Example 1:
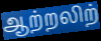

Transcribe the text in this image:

ஆற்றலிற்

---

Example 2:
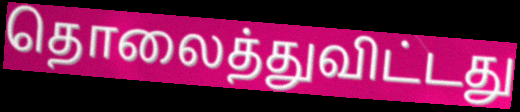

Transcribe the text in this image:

தொலைத்துவிட்டது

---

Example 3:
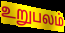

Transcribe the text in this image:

உறுபலம்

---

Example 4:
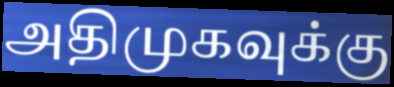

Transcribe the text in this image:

அதிமுகவுக்கு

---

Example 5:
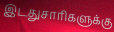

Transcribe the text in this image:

இடதுசாரிகளுக்கு